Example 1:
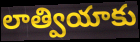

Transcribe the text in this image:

లాత్వియాకు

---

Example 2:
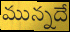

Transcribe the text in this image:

మున్నదే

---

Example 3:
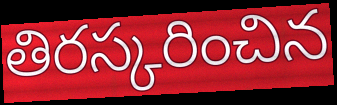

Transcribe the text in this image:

తిరస్కరించిన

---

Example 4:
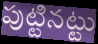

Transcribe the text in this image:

పుట్టినట్టు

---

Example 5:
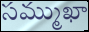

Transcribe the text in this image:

సమ్ముఖా